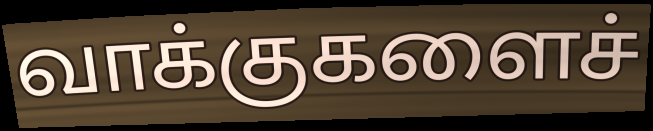
வாக்குகளைச்